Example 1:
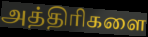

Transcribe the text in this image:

அத்திரிகளை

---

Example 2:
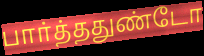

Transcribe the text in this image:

பார்த்ததுண்டோ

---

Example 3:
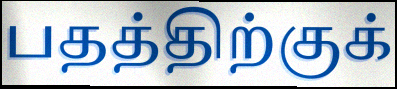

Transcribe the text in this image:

பதத்திற்குக்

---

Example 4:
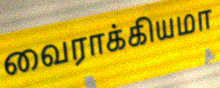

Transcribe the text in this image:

வைராக்கியமா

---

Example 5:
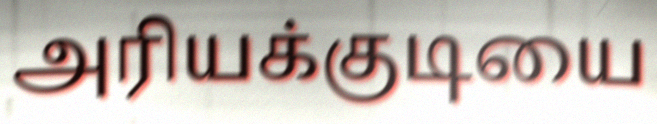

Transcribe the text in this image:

அரியக்குடியை